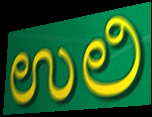
ಉಲಿ